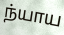
ந்யாய